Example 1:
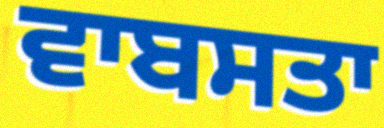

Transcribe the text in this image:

ਵਾਬਸਤਾ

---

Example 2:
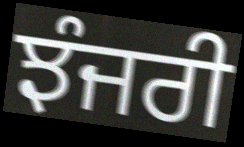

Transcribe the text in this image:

ਝੰਜਰੀ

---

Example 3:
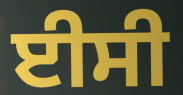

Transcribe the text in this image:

ਈਸੀ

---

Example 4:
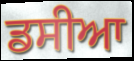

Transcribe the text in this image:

ਡਸੀਆ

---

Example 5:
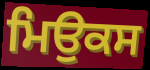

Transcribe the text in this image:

ਮਿਉਕਸ